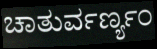
ಚಾತುರ್ವರ್ಣ್ಯಂ